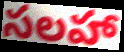
సలహా